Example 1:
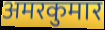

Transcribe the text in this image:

अमरकुमार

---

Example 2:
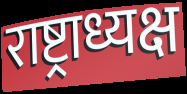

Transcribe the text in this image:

राष्ट्राध्यक्ष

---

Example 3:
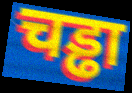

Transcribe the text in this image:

चड्ढा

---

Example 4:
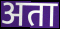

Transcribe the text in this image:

अता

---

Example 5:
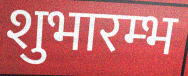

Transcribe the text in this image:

शुभारम्‍भ